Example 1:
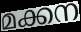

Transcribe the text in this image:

മക്കന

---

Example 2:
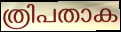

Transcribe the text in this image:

ത്രിപതാക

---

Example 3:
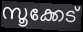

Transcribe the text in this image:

സൂക്കേട്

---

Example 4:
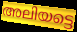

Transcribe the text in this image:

അലിയട്ടെ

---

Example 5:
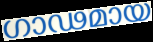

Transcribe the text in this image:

ഗാഢമായ